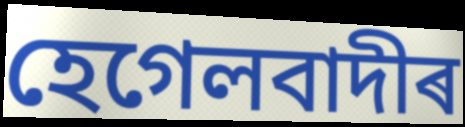
হেগেলবাদীৰ